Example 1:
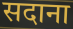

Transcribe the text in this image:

सदाना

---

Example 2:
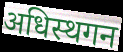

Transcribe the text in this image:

अधिस्थगन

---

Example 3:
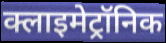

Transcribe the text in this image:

क्लाइमेट्रॉनिक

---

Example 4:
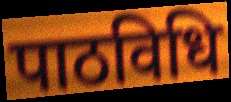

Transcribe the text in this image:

पाठविधि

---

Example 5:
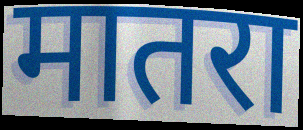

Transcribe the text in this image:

मातरा